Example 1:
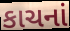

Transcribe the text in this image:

કાચનાં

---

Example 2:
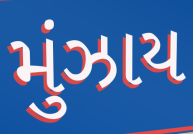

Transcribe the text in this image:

મુંઝાય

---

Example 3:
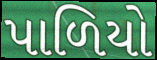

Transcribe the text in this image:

પાળિયો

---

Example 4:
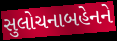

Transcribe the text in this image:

સુલોચનાબહેનને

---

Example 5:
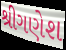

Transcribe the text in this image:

શ્રીગણેશ